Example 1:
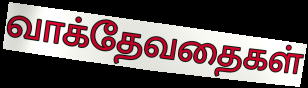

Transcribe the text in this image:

வாக்தேவதைகள்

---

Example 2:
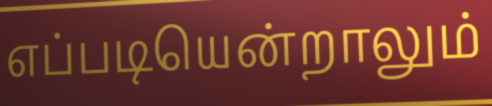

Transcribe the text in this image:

எப்படியென்றாலும்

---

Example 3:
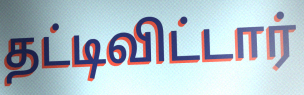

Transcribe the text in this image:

தட்டிவிட்டார்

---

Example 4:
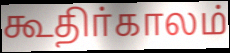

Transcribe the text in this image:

கூதிர்காலம்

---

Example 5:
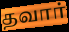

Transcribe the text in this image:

தவார்